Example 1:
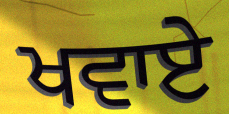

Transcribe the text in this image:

ਖਵਾਏ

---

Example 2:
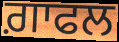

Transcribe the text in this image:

ਗ਼ਾਫਲ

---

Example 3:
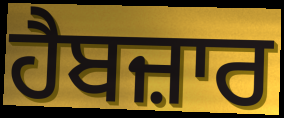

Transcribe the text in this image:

ਹੈਬਜ਼ਾਰ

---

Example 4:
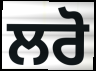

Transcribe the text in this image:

ਲਰੋ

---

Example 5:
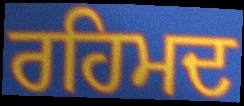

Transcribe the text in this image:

ਰਹਿਮਦ